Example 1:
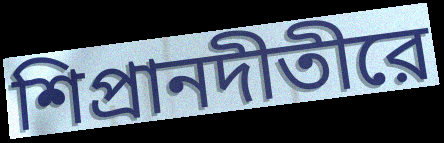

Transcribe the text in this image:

শিপ্রানদীতীরে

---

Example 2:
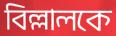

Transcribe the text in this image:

বিল্লালকে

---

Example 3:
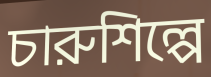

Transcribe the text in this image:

চারুশিল্পে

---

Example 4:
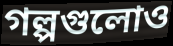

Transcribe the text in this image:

গল্পগুলোও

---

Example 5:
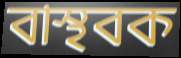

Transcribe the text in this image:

বাস্থবক